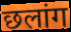
छलांग